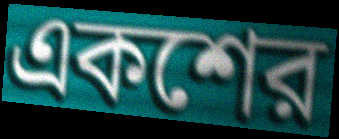
একশের